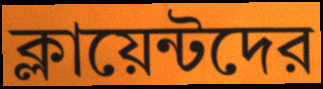
ক্লায়েন্টদের